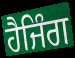
ਹੈਜਿੰਗ